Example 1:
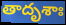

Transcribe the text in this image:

తాదృశాః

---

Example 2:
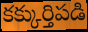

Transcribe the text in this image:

కక్కుర్తిపడి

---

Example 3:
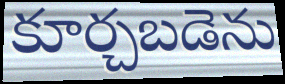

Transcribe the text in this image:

కూర్చబడెను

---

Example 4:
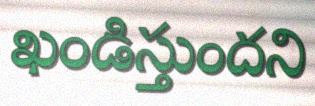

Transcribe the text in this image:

ఖండిస్తుందని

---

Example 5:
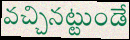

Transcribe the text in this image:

వచ్చినట్టుండే